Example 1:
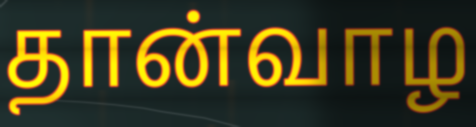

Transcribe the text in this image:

தான்வாழ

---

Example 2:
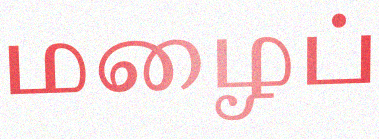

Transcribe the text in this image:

மழைப்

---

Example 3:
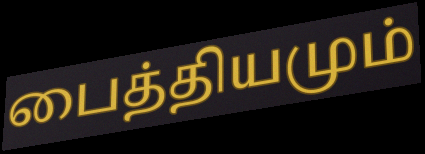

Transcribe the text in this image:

பைத்தியமும்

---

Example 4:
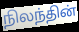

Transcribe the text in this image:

நிலந்தின்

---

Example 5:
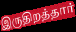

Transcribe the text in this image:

இருதிறத்தார்